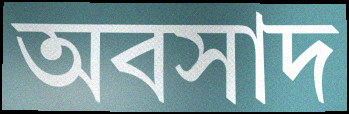
অবসাদ